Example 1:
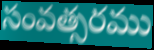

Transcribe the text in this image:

సంవత్సరము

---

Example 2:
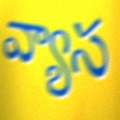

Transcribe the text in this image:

వ్యాస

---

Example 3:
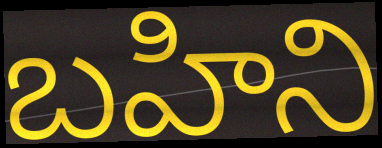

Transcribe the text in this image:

బహిని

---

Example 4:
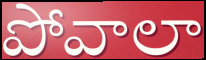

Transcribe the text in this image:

పోవాలా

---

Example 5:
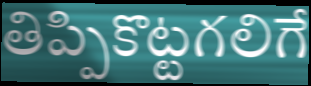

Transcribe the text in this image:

తిప్పికొట్టగలిగే